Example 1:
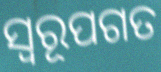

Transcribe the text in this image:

ସ୍ଵରୂପଗତ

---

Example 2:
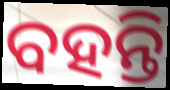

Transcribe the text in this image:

ବହନ୍ତି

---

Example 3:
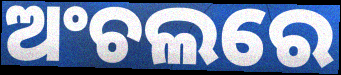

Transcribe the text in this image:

ଅଂଚଲରେ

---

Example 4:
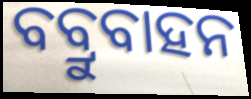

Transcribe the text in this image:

ବବ୍ରୁବାହନ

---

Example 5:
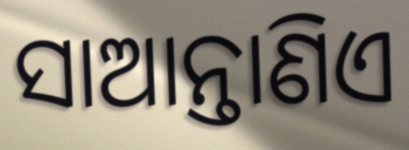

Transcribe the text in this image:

ସାଆନ୍ତାଣିଏ